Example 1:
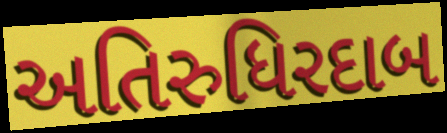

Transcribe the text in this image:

અતિરુધિરદાબ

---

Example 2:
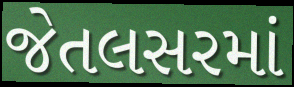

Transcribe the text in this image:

જેતલસરમાં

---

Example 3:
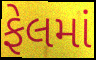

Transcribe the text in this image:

ફેલમાં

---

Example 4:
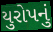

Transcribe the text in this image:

યુરોપનું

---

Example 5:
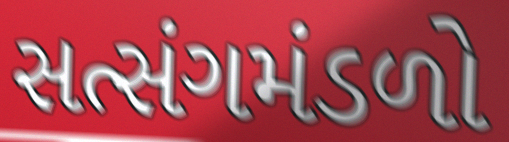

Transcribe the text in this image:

સત્સંગમંડળો